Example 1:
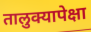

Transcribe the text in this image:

तालुक्यापेक्षा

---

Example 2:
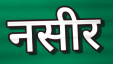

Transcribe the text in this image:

नसीर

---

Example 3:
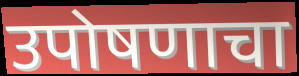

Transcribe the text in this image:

उपोषणाचा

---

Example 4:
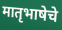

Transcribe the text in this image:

मातृभाषेचे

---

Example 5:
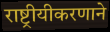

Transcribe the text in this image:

राष्ट्रीयीकरणाने